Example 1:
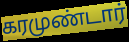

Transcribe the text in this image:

கரமுண்டார்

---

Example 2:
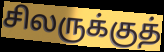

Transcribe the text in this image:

சிலருக்குத்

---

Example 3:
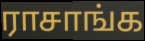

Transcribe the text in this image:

ராசாங்க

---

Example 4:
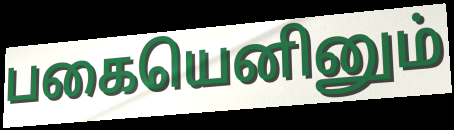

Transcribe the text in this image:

பகையெனினும்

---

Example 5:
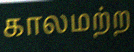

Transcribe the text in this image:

காலமற்ற